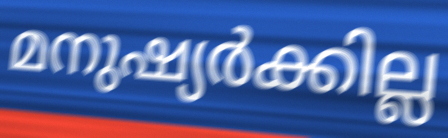
മനുഷ്യർക്കില്ല